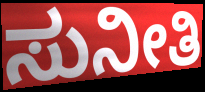
ಸುನೀತಿ